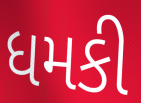
ધમકી